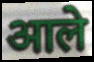
आले